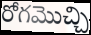
రోగమొచ్చి